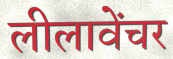
लीलावेंचर